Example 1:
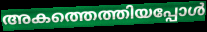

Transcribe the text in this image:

അകത്തെത്തിയപ്പോൾ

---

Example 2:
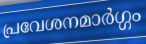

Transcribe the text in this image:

പ്രവേശനമാർഗ്ഗം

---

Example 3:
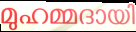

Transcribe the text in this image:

മുഹമ്മദായി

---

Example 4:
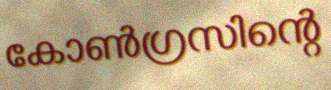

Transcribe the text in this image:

കോൺഗ്രസിന്റെ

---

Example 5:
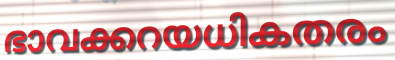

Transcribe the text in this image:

ഭാവക്കറയധികതരം